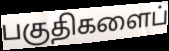
பகுதிகளைப்